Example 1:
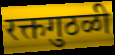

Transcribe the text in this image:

रक्तगुठळी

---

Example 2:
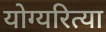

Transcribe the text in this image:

योग्यरित्या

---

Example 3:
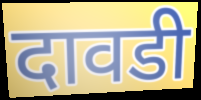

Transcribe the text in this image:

दावडी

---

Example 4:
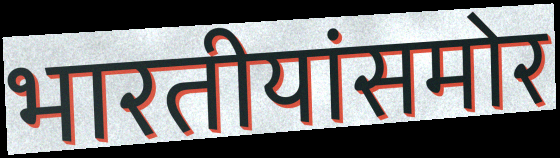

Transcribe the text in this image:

भारतीयांसमोर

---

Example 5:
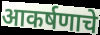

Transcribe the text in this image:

आकर्षणाचे